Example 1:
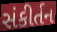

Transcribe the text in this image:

સંકીર્તન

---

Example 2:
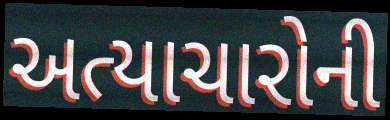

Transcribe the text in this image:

અત્યાચારોની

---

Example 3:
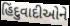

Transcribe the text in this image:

હિંદુવાદીઓને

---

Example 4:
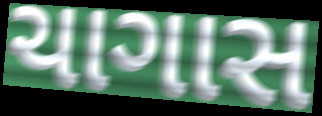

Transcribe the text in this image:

ચાગાસ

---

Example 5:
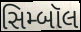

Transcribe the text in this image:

સિમ્બૉલ